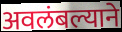
अवलंबल्याने